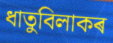
ধাতুবিলাকৰ